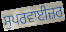
ਸੁਪਰਵਾਈਜ਼ਰ